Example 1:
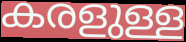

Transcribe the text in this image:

കരളുള്ള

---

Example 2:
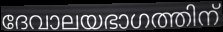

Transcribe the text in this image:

ദേവാലയഭാഗത്തിന്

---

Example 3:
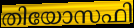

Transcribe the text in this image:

തിയോസഫി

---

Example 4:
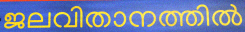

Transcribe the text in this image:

ജലവിതാനത്തിൽ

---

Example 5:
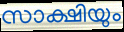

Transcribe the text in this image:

സാക്ഷിയും